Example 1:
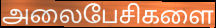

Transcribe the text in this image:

அலைபேசிகளை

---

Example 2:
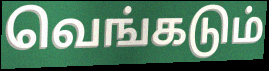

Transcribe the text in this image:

வெங்கடும்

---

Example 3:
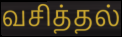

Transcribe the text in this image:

வசித்தல்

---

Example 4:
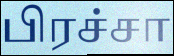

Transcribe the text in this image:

பிரச்சா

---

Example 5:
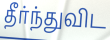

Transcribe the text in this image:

தீர்ந்துவிட